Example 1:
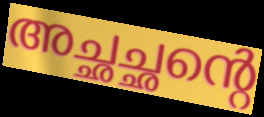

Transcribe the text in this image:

അച്ഛച്ഛന്റെ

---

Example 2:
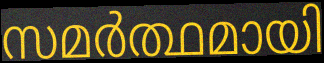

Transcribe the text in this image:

സമർത്ഥമായി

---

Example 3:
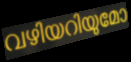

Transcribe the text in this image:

വഴിയറിയുമോ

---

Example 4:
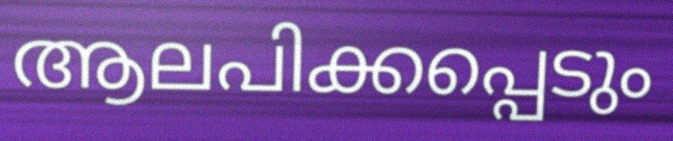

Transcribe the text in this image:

ആലപിക്കപ്പെടും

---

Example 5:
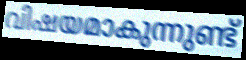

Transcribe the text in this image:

വിഷയമാകുന്നുണ്ട്